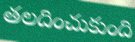
తలదించుకుంది